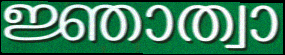
ജ്ഞാത്വാ